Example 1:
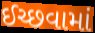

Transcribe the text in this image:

ઈચ્છવામાં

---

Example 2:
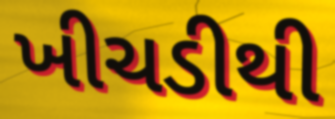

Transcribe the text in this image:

ખીચડીથી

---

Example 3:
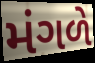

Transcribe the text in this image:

મંગળે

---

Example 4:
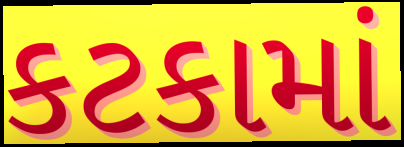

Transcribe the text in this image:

કટકામાં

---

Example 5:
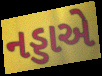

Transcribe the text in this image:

નડ્ડાએ